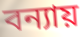
বন্যায়